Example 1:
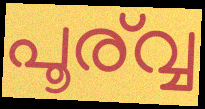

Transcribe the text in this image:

പൂര്വ്വ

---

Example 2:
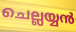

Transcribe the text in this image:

ചെല്ലയ്യൻ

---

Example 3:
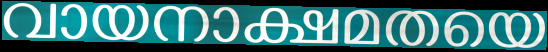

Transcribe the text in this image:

വായനാക്ഷമതയെ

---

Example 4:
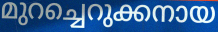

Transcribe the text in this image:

മുറച്ചെറുക്കനായ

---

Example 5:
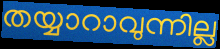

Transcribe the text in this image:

തയ്യാറാവുന്നില്ല